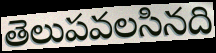
తెలుపవలసినది